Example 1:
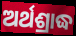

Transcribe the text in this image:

ଅର୍ଥଶ୍ରାଦ୍ଧ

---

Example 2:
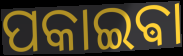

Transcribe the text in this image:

ପକାଇଵା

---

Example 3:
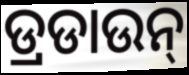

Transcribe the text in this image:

ଡ୍ରଡାଉନ୍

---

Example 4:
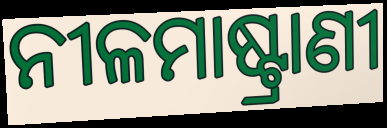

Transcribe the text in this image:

ନୀଳମାଷ୍ଟ୍ରାଣୀ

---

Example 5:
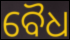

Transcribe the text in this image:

ବୈଧ